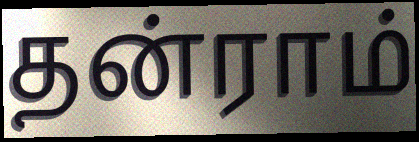
தன்ராம்